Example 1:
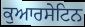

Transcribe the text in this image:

ਕੁਆਰਸੇਟਿਨ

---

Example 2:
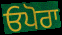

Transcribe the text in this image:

ਓਪੋਰਾ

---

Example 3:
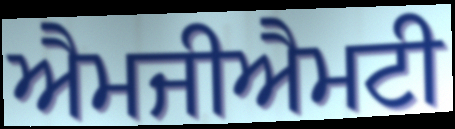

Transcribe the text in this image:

ਐਮਜੀਐਮਟੀ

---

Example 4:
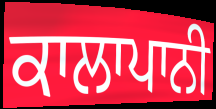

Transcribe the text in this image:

ਕਾਲਾਪਾਨੀ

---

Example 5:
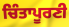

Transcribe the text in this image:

ਚਿੰਤਾਪੂਰਣੀ